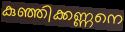
കുഞ്ഞിക്കണ്ണനെ